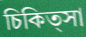
চিকিত্সা